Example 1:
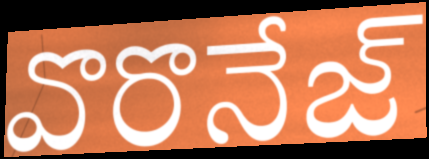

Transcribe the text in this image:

వొరొనేజ్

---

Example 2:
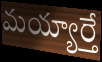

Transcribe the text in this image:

మయ్యార్తే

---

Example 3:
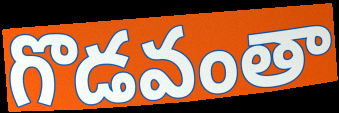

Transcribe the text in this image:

గొడవంతా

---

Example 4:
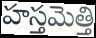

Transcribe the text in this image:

హస్తమెత్తి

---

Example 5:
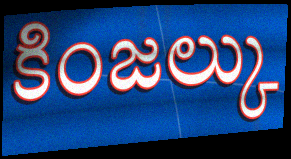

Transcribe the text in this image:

కింజల్కు